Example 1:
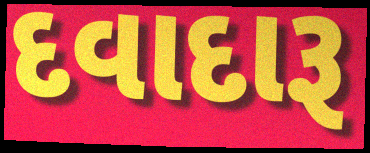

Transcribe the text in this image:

દવાદારૂ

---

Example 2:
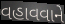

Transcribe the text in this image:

વહાવવાને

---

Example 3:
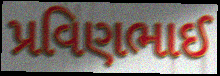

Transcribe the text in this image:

પ્રવિણભાઈ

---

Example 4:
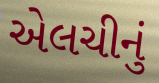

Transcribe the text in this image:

એલચીનું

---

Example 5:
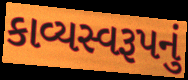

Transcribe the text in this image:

કાવ્યસ્વરૂપનું